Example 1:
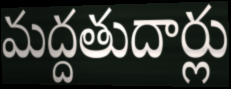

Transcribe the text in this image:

మద్దతుదార్లు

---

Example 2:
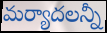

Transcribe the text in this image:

మర్యాదలన్నీ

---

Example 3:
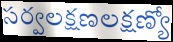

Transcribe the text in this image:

సర్వలక్షణలక్షణ్యో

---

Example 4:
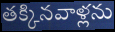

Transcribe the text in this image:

తక్కినవాళ్లను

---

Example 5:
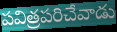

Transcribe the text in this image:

పవిత్రపరిచేవాడు